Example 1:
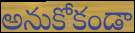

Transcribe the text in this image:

అనుకోకండా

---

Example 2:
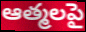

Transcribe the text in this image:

ఆత్మలపై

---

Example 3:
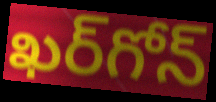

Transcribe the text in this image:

ఖర్‌గోన్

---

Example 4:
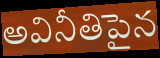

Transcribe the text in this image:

అవినీతిపైన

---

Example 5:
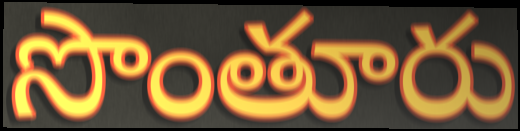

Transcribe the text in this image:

సొంతూరు